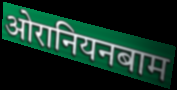
ओरानियनबाम